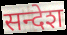
सन्देश